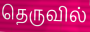
தெருவில்